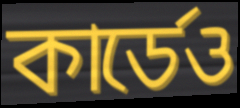
কার্ডেও